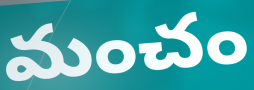
మంచం